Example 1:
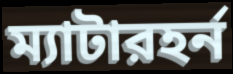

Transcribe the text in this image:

ম্যাটারহর্ন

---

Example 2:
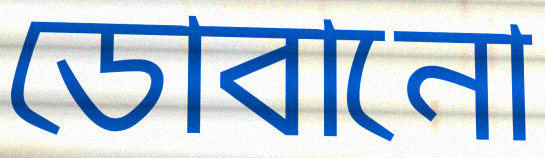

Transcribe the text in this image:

ডোবানো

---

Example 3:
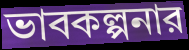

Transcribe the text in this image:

ভাবকল্পনার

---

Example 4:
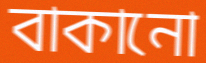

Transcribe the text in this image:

বাকানো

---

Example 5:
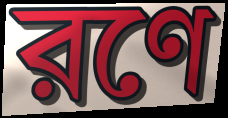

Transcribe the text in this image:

রণে